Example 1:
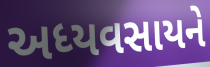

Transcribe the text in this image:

અધ્યવસાયને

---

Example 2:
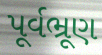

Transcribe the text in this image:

પૂર્વભ્રૂણ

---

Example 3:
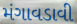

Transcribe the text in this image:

મંગાવડાવી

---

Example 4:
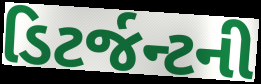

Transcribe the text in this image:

ડિટર્જન્ટની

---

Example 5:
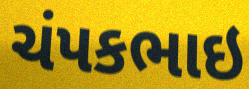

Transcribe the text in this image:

ચંપકભાઇ